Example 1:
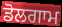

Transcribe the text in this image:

ਡੋਲਗਾਮ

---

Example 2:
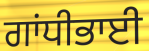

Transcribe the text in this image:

ਗਾਂਧੀਭਾਈ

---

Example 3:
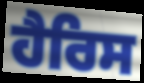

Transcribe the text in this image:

ਹੈਰਿਸ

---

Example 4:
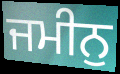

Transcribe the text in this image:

ਜਮੀਨੁ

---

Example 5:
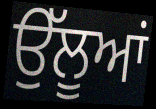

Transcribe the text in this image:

ਉੱਲੂਆਂ